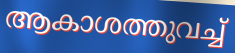
ആകാശത്തുവച്ച്